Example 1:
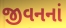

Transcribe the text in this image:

જીવનનાં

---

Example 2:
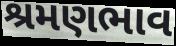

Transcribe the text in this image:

શ્રમણભાવ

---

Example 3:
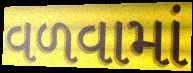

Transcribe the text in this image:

વળવામાં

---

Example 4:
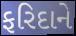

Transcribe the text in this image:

ફરિદાને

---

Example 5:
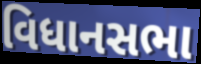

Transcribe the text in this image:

વિધાનસભા